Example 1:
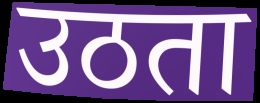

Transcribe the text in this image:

उठता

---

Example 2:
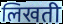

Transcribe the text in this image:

लिखती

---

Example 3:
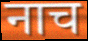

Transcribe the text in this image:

नाच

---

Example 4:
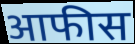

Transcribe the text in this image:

आफीस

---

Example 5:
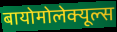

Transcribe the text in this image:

बायोमोलेक्यूल्स